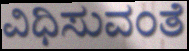
ವಿಧಿಸುವಂತೆ